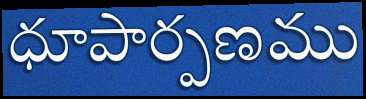
ధూపార్పణము